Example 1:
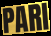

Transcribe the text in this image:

PARI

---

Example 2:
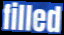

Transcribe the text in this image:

filled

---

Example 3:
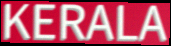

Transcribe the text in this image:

KERALA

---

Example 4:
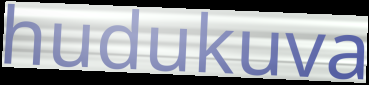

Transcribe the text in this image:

hudukuva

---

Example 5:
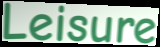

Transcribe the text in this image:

Leisure